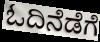
ಓದಿನೆಡೆಗೆ